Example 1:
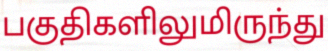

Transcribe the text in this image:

பகுதிகளிலுமிருந்து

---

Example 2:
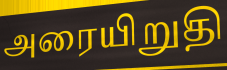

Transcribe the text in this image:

அரையிறுதி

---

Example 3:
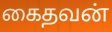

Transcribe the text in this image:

கைதவன்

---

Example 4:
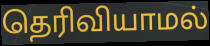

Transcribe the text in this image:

தெரிவியாமல்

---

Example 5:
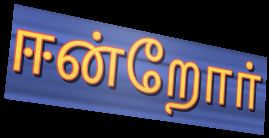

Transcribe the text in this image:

ஈன்றோர்